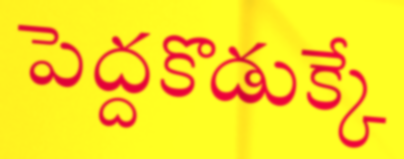
పెద్దకొడుక్కే